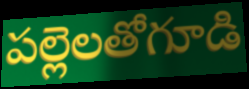
పల్లెలతోగూడి